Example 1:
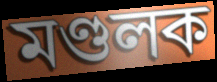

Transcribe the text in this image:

মণ্ডলক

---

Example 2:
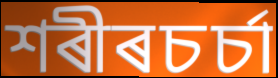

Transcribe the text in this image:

শৰীৰচৰ্চা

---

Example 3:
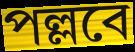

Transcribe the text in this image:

পল্লবে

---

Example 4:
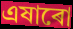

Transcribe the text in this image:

এষাৰো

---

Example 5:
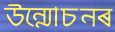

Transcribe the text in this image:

উন্মোচনৰ